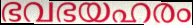
ഭവഭയഹരം